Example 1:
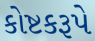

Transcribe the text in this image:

કોષ્ટકરૂપે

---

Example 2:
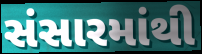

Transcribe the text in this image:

સંસારમાંથી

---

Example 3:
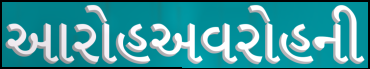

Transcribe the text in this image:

આરોહઅવરોહની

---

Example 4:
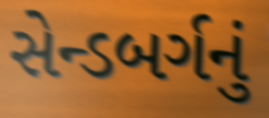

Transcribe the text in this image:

સેન્ડબર્ગનું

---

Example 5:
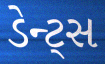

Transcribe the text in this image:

ડેન્ટ્સ